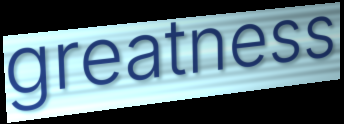
greatness